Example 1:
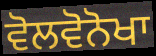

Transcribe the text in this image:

ਵੋਲਵੋਨੋਖਾ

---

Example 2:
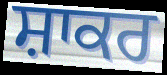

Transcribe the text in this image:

ਸ਼ਾਕਰ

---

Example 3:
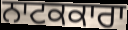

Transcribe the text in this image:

ਨਾਟਕਕਾਰਾ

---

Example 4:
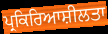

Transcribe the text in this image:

ਪ੍ਰਕਿਰਿਆਸ਼ੀਲਤਾ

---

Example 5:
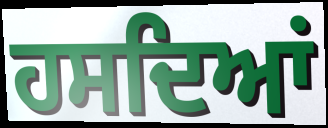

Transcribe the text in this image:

ਹਸਦਿਆਂ